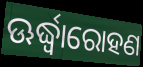
ଊର୍ଦ୍ଧ୍ୱାରୋହଣ